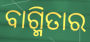
ବାଗ୍ମିତାର